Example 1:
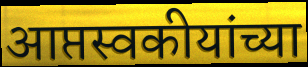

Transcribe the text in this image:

आप्तस्वकीयांच्या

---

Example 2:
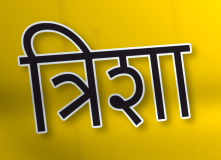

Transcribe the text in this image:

त्रिशा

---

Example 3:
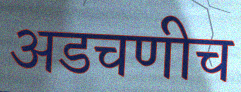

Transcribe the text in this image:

अडचणीच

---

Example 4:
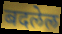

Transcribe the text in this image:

बदलेल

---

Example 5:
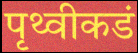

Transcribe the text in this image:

पृथ्वीकडं